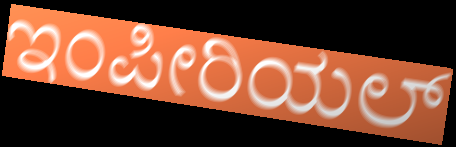
ಇಂಪೀರಿಯಲ್